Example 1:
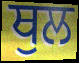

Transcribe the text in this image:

ਥੁਲ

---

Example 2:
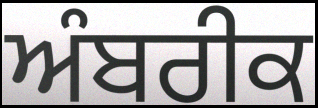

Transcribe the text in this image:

ਅੰਬਰੀਕ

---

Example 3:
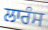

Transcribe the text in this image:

ਲਾਰੰਸ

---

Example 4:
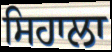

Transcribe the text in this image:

ਸਿਹਾਲਾ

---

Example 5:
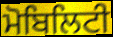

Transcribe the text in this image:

ਮੋਬਿਲਿਟੀ